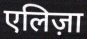
एलिज़ा